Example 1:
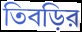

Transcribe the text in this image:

তিবড়ির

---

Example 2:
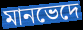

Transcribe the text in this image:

মানভেদে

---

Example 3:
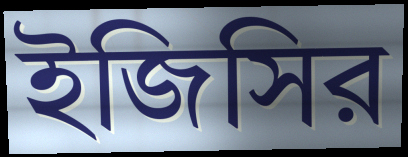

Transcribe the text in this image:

ইজিসির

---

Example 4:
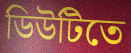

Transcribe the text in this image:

ডিউটিতে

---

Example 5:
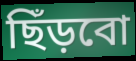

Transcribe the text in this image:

ছিঁড়বো